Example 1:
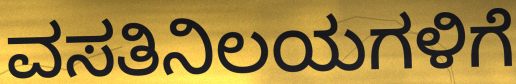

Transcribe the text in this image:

ವಸತಿನಿಲಯಗಳಿಗೆ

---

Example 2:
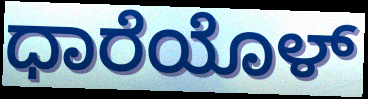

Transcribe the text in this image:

ಧಾರೆಯೊಳ್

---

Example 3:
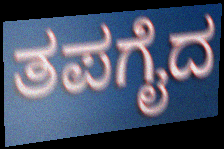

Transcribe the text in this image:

ತಪಗೈದ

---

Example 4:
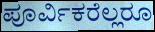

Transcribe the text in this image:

ಪೂರ್ವಿಕರೆಲ್ಲರೂ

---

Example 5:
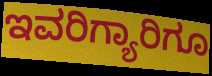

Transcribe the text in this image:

ಇವರಿಗ್ಯಾರಿಗೂ